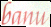
banu